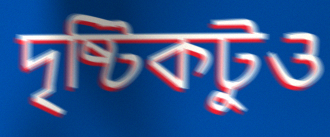
দৃষ্টিকটুও